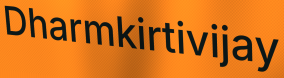
Dharmkirtivijay